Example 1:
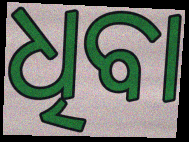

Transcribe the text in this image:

ଧିବା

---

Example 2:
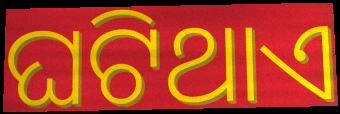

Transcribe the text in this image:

ଘଟିଥାଏ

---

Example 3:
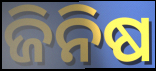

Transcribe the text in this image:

ଜିନିଷ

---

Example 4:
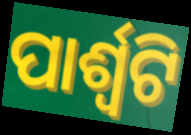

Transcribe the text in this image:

ପାର୍ଶ୍ଵଟି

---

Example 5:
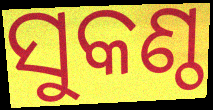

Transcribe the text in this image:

ସୁକଣ୍ଠ